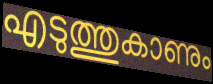
എടുത്തുകാണും